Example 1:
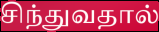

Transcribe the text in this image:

சிந்துவதால்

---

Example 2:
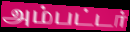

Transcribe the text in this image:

அம்பட்டர்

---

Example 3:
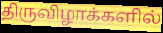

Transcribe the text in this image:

திருவிழாக்களில்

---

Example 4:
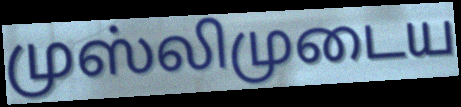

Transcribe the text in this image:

முஸ்லிமுடைய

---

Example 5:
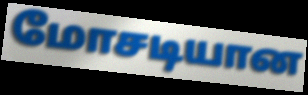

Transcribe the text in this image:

மோசடியான